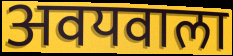
अवयवाला